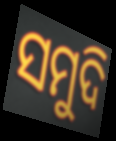
ସମୁଦି